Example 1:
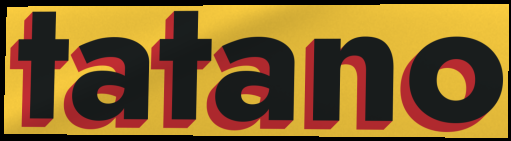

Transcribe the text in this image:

tatano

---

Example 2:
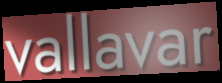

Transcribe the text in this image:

vallavar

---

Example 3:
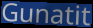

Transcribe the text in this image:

Gunatit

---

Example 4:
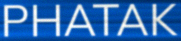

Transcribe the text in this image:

PHATAK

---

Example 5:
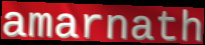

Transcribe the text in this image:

amarnath